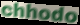
chhodo